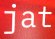
jat